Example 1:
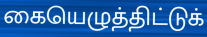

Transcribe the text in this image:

கையெழுத்திட்டுக்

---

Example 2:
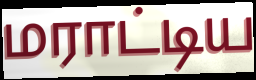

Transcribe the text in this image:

மராட்டிய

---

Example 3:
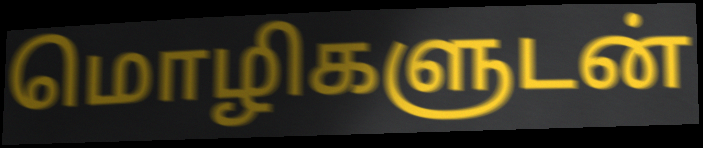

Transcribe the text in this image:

மொழிகளுடன்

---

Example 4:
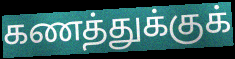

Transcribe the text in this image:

கணத்துக்குக்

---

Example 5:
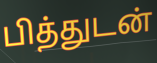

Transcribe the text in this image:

பித்துடன்